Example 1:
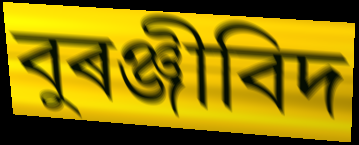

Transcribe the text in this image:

বুৰঞ্জীবিদ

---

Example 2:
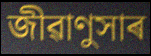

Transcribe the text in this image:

জীৱাণুসাৰ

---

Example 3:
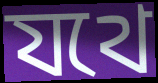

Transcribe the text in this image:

যথে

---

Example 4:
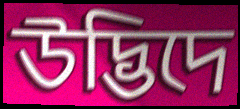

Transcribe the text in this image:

উদ্ভিদে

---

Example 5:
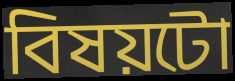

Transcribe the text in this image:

বিষয়টো